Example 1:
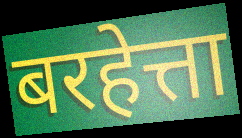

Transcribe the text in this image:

बरहेत्ता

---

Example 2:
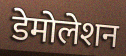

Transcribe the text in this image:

डेमोलेशन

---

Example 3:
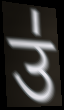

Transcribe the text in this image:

उ॑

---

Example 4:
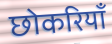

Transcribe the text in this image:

छोकरियाँ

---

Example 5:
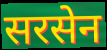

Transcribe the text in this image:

सरसेन